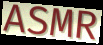
ASMR